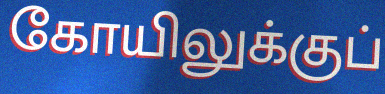
கோயிலுக்குப்